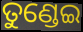
ତୁଣ୍ଡେଇ